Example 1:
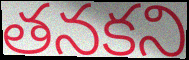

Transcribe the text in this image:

తనకని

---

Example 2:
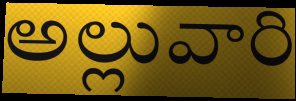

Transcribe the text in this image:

అల్లువారి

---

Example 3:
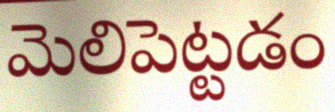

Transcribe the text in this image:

మెలిపెట్టడం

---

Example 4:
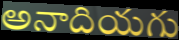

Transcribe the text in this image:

అనాదియగు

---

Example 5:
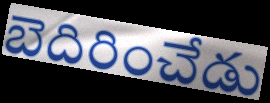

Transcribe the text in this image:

బెదిరించేడు